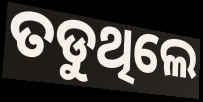
ତଡୁଥିଲେ